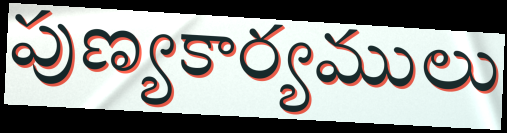
పుణ్యకార్యములు